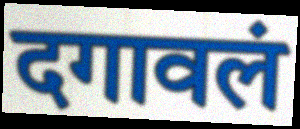
दगावलं